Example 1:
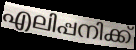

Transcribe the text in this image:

എലിപ്പനിക്ക്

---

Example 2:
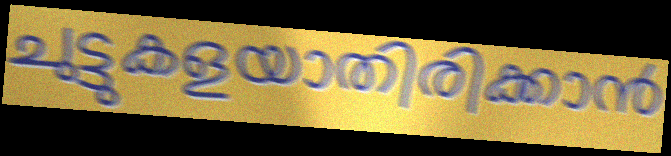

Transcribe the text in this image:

ചുട്ടുകളയാതിരിക്കാൻ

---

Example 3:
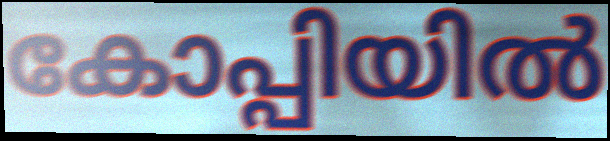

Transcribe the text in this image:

കോപ്പിയിൽ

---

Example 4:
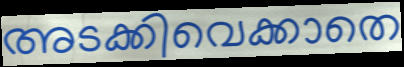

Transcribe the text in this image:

അടക്കിവെക്കാതെ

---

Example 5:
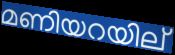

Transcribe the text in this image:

മണിയറയില്